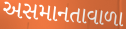
અસમાનતાવાળા